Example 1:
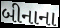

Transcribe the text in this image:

બીનાના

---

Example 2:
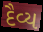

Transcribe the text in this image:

દૈવ્ય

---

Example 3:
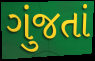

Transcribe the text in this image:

ગુંજતાં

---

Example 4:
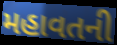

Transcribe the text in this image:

મહાવતની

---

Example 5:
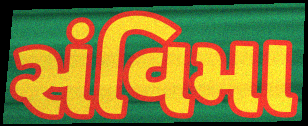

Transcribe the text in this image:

સંવિમા